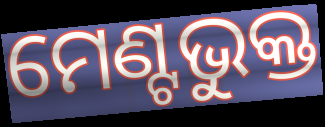
ମେଣ୍ଟଭୁକ୍ତ